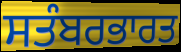
ਸਤੰਬਰਭਾਰਤ